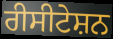
ਰੀਸੀਟੇਸ਼ਨ